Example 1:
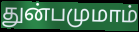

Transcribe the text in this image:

துன்பமுமாம்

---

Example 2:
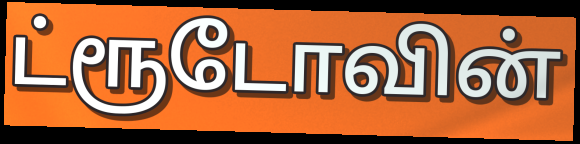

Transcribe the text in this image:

ட்ரூடோவின்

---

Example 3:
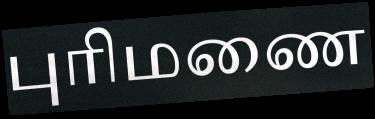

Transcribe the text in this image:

புரிமணை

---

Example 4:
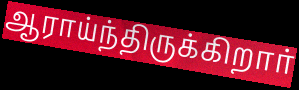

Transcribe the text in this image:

ஆராய்ந்திருக்கிறார்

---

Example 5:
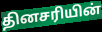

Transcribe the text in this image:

தினசரியின்